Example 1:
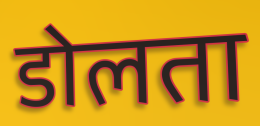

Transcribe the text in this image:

डोलता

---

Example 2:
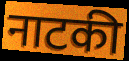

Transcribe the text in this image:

नाटकी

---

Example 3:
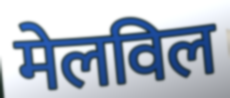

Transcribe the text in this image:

मेलविल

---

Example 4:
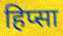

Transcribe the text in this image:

हिप्सा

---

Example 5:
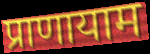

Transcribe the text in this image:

प्राणायाम